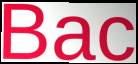
Bac